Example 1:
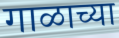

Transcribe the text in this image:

गाळाच्या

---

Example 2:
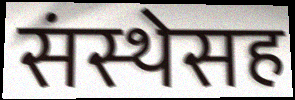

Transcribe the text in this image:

संस्थेसह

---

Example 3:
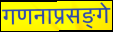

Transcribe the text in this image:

गणनाप्रसङ्गे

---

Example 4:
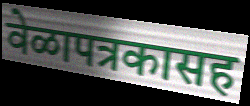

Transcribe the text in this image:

वेळापत्रकासह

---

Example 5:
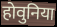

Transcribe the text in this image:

होवुनिया